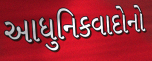
આધુનિકવાદોનો